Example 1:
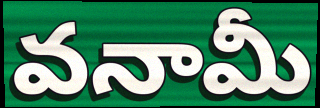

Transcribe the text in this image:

వనామీ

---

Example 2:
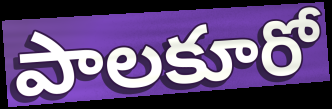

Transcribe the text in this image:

పాలకూరో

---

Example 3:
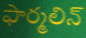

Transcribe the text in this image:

ఫార్మలిన్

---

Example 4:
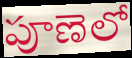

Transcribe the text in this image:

పూణెలో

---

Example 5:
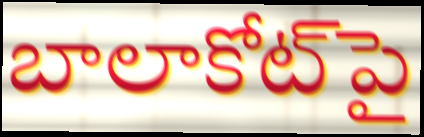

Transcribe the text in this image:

బాలాకోట్‌పై